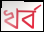
খৰ্ব